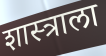
शास्त्राला